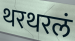
थरथरलं